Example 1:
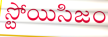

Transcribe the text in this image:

స్టోయిసిజం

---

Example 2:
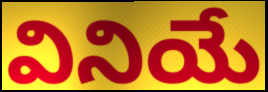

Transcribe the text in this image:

వినియే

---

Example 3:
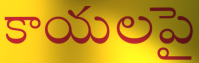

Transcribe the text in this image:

కాయలపై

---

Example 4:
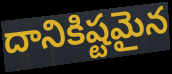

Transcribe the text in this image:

దానికిష్టమైన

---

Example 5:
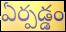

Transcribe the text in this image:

ఏర్పడ్డం